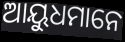
ଆୟୁଧମାନେ